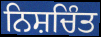
ਨਿਸ਼ਚਿੰਤ